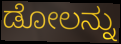
ಡೋಲನ್ನು